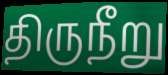
திருநீறு